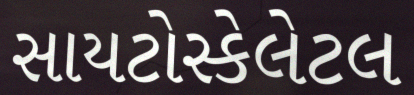
સાયટોસ્કેલેટલ